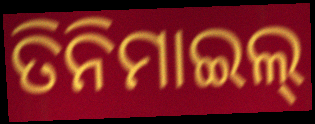
ତିନିମାଇଲ୍